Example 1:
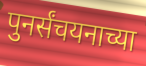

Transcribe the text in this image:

पुनर्संचयनाच्या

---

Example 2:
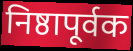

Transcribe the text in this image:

निष्ठापूर्वक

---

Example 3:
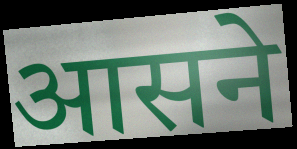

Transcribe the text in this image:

आसने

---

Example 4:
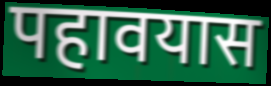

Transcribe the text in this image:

पहावयास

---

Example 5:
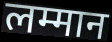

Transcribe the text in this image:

लम्मान